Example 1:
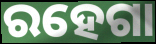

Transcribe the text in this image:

ରହେଗା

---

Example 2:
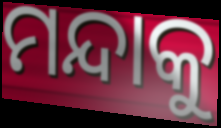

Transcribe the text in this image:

ମନ୍ଦାକୁ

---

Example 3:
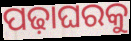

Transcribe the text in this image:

ପଢ଼ାଘରକୁ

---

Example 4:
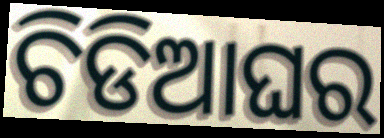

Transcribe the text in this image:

ଚିଡିଆଘର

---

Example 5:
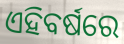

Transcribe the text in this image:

ଏହିବର୍ଷରେ